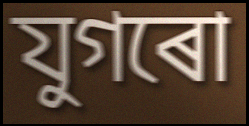
যুগৰো